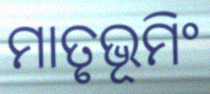
ମାତୃଭୂମିଂ